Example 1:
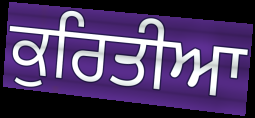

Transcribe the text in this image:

ਕੁਰਿਤੀਆ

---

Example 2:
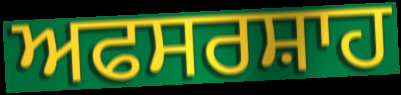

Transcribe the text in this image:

ਅਫਸਰਸ਼ਾਹ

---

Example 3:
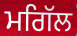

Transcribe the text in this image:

ਮਗਿੱਲ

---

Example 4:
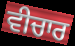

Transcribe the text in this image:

ਵੀਚਾਰ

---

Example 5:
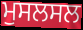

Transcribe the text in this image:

ਮੁਸਲਸਲ